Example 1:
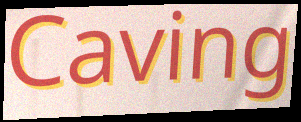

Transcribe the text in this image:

Caving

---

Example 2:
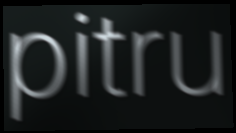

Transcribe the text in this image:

pitru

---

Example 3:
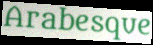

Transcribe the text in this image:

Arabesque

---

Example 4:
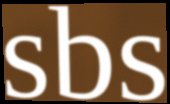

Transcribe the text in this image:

sbs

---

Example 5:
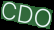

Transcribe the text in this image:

CDO